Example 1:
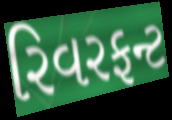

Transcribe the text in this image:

રિવરફન્ટ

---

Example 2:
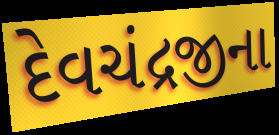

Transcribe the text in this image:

દેવચંદ્રજીના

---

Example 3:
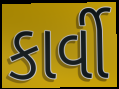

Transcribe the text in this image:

કાર્વી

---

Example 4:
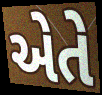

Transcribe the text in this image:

એતે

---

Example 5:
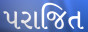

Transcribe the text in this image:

પરાજિત